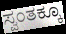
ಸ್ವಂತಕ್ಕೂ